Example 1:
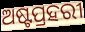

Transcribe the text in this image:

ଅଷ୍ଟପ୍ରହରୀ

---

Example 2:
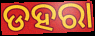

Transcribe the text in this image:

ଡହରା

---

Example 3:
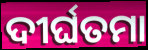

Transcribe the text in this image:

ଦୀର୍ଘତମା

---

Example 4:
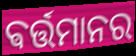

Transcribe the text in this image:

ଵର୍ତ୍ତମାନର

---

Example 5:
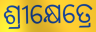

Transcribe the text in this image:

ଶ୍ରୀକ୍ଷେତ୍ରେ